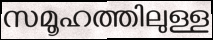
സമൂഹത്തിലുള്ള